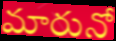
మారునో